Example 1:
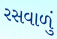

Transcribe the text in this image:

રસવાળું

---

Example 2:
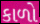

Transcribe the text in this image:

કાળો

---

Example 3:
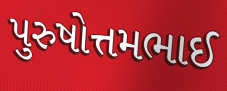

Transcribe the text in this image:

પુરુષોત્તમભાઈ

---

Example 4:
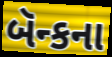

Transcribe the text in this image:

બૅન્કના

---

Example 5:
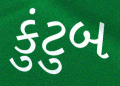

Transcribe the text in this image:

કુંટુબ